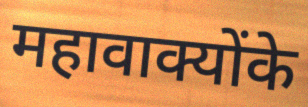
महावाक्योंके